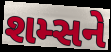
શમ્સને